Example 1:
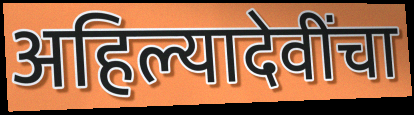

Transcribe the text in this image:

अहिल्यादेवींचा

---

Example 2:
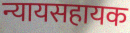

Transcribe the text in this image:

न्यायसहायक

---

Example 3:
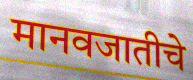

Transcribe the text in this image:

मानवजातीचे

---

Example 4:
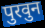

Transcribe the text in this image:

पुरवुन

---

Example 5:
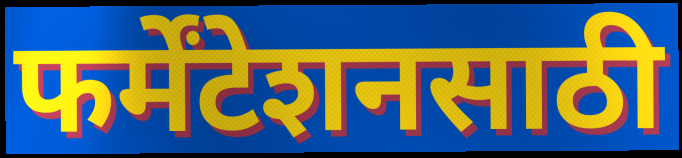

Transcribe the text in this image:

फर्मेंटेशनसाठी